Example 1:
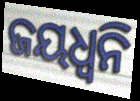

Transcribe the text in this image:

ଜୟଧ୍ୱନି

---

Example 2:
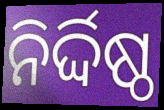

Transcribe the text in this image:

ନିର୍ଦ୍ଦିଷ୍ଠ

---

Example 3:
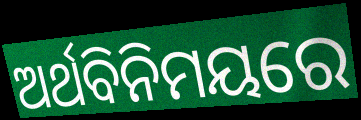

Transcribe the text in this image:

ଅର୍ଥବିନିମୟରେ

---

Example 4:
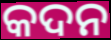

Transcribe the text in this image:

କଦନ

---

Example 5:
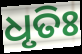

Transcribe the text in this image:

ଧୃତିଃ